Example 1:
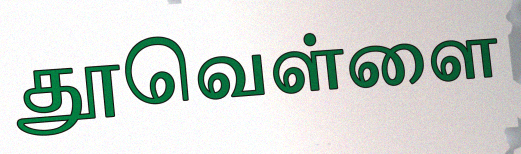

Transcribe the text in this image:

தூவெள்ளை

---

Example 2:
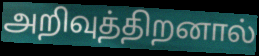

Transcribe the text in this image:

அறிவுத்திறனால்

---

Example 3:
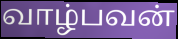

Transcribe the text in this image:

வாழ்பவன்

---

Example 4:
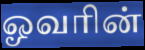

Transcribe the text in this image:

ஓவரின்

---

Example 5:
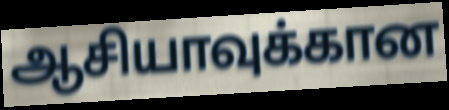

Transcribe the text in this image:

ஆசியாவுக்கான